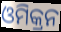
ଓମିକ୍ରନ